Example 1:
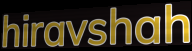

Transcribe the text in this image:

hiravshah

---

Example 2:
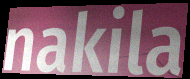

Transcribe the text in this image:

nakila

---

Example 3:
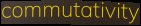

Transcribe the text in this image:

commutativity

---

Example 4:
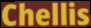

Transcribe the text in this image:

Chellis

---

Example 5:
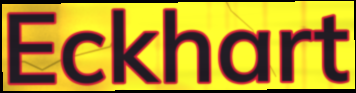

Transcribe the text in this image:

Eckhart